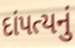
દાંપત્યનું